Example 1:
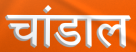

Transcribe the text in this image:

चांडाल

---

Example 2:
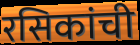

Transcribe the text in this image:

रसिकांची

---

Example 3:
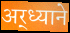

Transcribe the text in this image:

अर्ध्याने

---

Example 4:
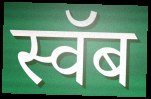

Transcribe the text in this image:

स्वॅब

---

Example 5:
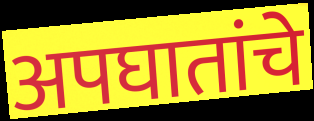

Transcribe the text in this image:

अपघातांचे